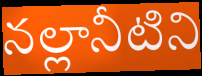
నల్లానీటిని